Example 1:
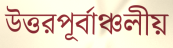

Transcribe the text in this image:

উত্তরপূর্বাঞ্চলীয়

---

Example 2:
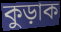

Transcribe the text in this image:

কুড়াক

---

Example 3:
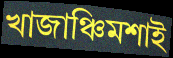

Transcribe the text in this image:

খাজাঞ্চিমশাই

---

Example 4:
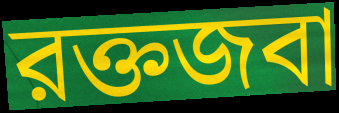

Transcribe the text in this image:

রক্তজবা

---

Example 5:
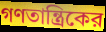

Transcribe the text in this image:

গণতান্ত্রিকের